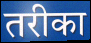
तरीका